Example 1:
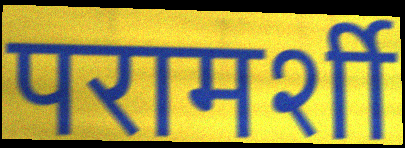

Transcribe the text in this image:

परामर्शी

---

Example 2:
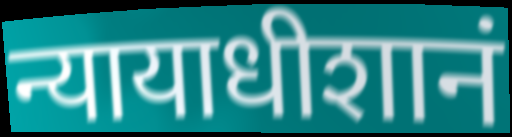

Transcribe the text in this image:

न्यायाधीशानं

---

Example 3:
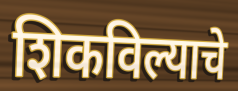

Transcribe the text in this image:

शिकविल्याचे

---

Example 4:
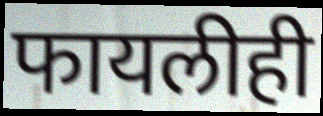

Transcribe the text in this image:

फायलीही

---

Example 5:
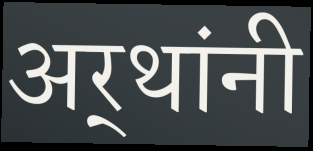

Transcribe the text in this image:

अर्थांनी